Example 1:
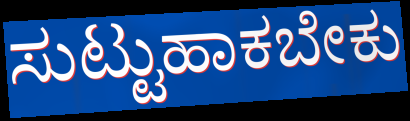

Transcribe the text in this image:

ಸುಟ್ಟುಹಾಕಬೇಕು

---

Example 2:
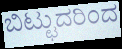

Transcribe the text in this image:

ಬಿಟ್ಟುದರಿಂದ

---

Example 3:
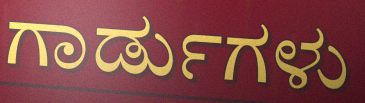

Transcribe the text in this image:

ಗಾರ್ಡುಗಳು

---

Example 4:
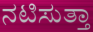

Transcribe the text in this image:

ನಟಿಸುತ್ತಾ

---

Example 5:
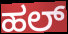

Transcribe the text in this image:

ಹಲ್